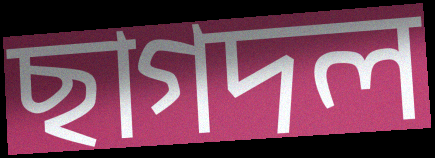
ছাগদল